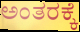
ಅಂತರಕ್ಕೆ